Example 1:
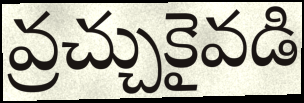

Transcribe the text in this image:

వ్రచ్చుకైవడి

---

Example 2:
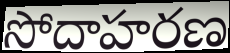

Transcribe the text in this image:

సోదాహరణ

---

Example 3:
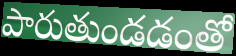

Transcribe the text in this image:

పారుతుండడంతో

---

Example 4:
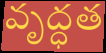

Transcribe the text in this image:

వృద్ధత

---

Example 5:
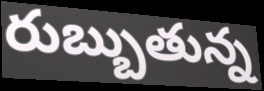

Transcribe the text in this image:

రుబ్బుతున్న